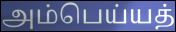
அம்பெய்யத்